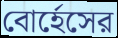
বোর্হেসের